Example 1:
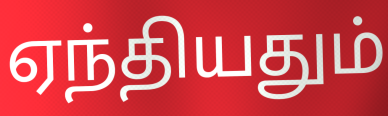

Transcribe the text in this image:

ஏந்தியதும்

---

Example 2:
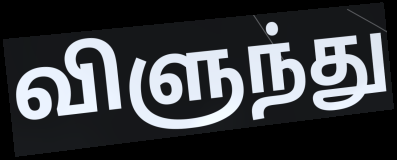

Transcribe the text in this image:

விளுந்து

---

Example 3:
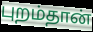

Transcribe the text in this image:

புறம்தான்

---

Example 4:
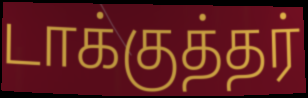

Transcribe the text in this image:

டாக்குத்தர்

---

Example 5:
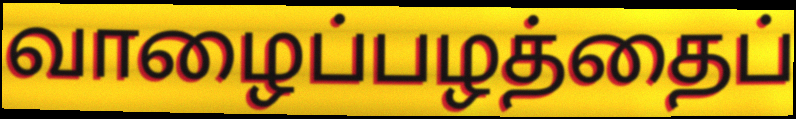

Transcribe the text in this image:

வாழைப்பழத்தைப்